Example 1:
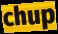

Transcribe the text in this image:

chup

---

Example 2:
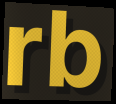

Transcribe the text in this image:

rb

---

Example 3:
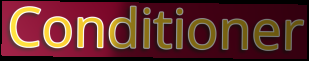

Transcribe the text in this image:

Conditioner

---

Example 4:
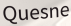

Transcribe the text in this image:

Quesne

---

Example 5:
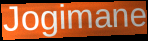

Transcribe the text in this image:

Jogimane